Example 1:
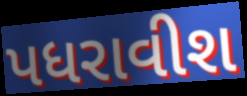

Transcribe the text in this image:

પધરાવીશ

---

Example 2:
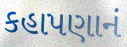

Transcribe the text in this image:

કહાપણાનં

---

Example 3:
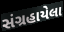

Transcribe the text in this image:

સંગ્રહાયેલા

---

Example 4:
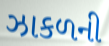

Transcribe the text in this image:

ઝાકળની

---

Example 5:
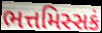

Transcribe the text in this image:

ભત્તમિસ્સકં